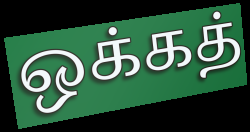
ஒக்கத்